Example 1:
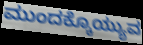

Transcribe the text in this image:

ಮುಂದಕ್ಕೊಯ್ಯುವ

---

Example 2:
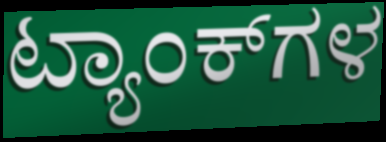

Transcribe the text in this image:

ಟ್ಯಾಂಕ್‌ಗಳ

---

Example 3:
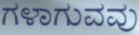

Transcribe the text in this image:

ಗಳಾಗುವವು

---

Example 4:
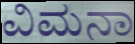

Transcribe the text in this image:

ವಿಮನಾ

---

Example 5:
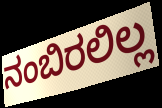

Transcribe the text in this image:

ನಂಬಿರಲಿಲ್ಲ